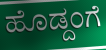
ಹೊಡ್ದಂಗೆ